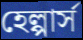
হেল্পার্স